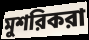
মুশরিকরা